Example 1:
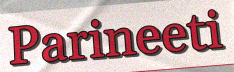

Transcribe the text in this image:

Parineeti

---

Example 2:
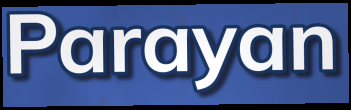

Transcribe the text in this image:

Parayan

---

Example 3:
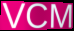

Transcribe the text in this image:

VCM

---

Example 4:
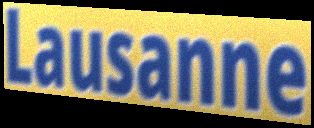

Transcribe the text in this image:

Lausanne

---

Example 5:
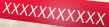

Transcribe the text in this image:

XXXXXXXXXXX